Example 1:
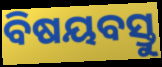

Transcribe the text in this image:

ବିଷୟବସ୍ତୁ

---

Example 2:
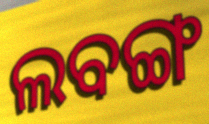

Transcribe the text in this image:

ଲବଙ୍ଗ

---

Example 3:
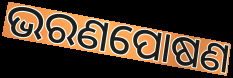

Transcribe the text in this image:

ଭରଣପୋଷଣ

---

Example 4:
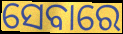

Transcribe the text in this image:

ସେବାରେ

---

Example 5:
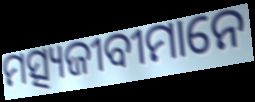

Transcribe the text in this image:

ମତ୍ସ୍ୟଜୀବୀମାନେ